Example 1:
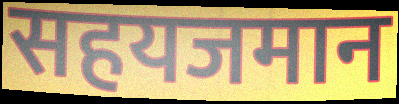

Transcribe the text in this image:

सहयजमान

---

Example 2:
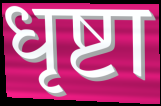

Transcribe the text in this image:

धृष्टा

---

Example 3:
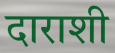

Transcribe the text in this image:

दाराशी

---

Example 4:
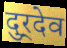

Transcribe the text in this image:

दुर्देव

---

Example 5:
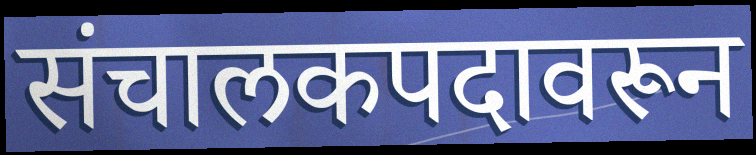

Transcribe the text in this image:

संचालकपदावरून